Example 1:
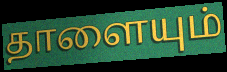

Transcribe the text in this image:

தாளையும்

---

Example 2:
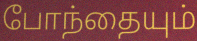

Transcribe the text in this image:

போந்தையும்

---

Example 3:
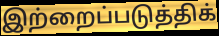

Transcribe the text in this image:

இற்றைப்படுத்திக்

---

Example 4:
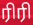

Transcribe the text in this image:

ரிரி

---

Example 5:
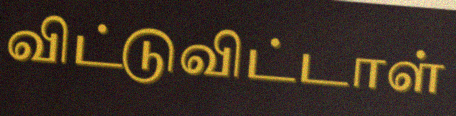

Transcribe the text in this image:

விட்டுவிட்டாள்